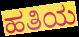
ಹತಿಯ